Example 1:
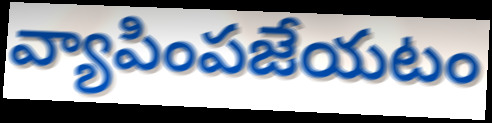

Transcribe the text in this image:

వ్యాపింపజేయటం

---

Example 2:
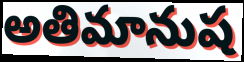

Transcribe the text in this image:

అతిమానుష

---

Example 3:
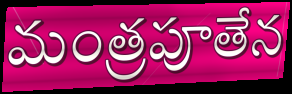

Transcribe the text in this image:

మంత్రపూతేన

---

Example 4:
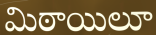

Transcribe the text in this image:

మిఠాయిలూ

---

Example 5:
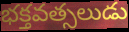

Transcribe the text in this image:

భక్తవత్సలుడు